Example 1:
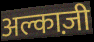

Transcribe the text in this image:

अल्काज़ी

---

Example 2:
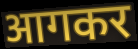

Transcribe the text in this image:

आगकर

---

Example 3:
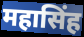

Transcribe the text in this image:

महासिंह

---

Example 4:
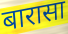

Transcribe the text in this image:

बारासा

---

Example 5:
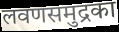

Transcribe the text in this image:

लवणसमुद्रका